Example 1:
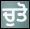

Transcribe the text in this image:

ਚੁਤੋ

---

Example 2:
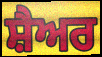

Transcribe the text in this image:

ਸ਼ੈਅਰ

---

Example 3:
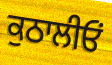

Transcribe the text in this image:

ਕੁਠਾਲੀਓਂ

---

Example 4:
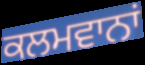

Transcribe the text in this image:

ਕਲਮਵਾਨਾਂ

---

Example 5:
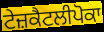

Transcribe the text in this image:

ਟੇਜ਼ਕੈਟਲੀਪੋਕਾ